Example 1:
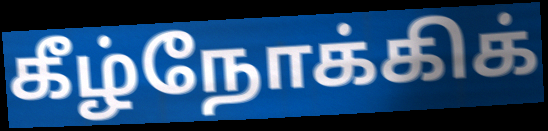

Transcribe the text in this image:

கீழ்நோக்கிக்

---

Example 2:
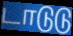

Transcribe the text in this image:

டாடுடு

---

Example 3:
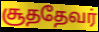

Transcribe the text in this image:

சூததேவர்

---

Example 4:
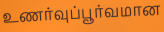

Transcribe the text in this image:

உணர்வுப்பூர்வமான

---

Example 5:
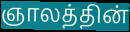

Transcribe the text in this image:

ஞாலத்தின்